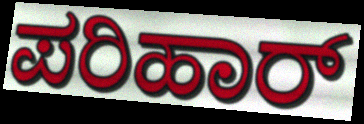
ಪರಿಹಾರ್